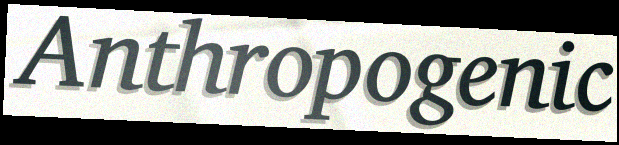
Anthropogenic